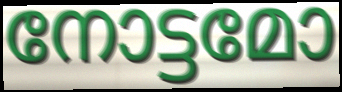
നോട്ടമോ